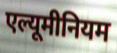
एल्यूमीनियम